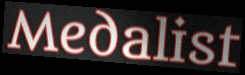
Medalist